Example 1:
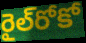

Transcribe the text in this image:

రైల్‌రోకో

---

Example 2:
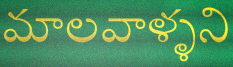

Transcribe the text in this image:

మాలవాళ్ళని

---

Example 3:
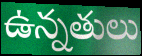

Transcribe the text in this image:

ఉన్నతులు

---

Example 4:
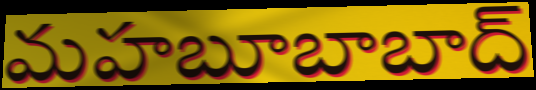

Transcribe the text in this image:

మహబూబాబాద్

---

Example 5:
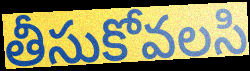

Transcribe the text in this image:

తీసుకోవలసి